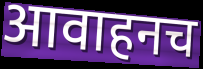
आवाहनच